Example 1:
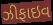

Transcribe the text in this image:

ઝીફાઇવ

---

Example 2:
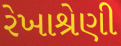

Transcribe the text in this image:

રેખાશ્રેણી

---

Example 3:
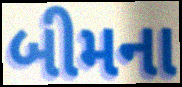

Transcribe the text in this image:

બીમના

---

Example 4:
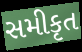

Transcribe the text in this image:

સમીકૃત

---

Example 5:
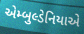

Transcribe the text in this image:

એમ્બુલ્ડેનિયાએ